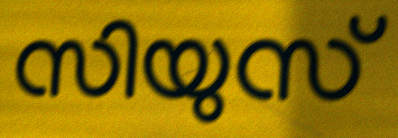
സിയുസ്